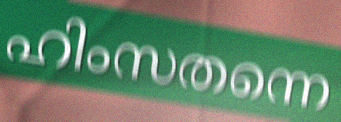
ഹിംസതന്നെ